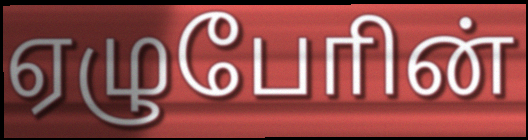
ஏழுபேரின்